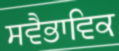
ਸਵੈਭਾਵਿਕ